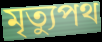
মৃত্যুপথ